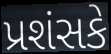
પ્રશંસકે